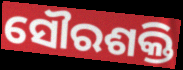
ସୌରଶକ୍ତି